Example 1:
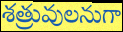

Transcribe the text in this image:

శత్రువులనుగా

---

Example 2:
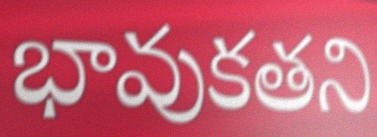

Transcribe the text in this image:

భావుకతని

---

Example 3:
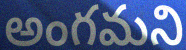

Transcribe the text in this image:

అంగమని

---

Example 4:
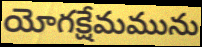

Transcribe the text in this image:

యోగక్షేమమును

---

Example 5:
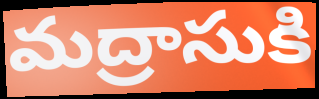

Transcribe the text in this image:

మద్రాసుకి